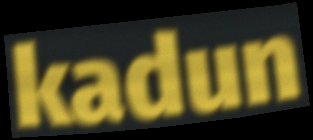
kadun